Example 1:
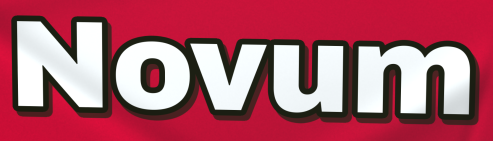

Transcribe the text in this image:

Novum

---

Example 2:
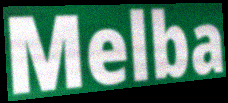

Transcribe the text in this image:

Melba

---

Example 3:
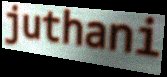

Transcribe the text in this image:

juthani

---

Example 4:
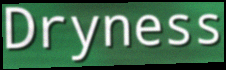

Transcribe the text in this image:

Dryness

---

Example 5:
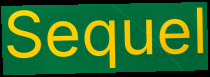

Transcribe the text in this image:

Sequel